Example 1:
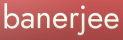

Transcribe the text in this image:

banerjee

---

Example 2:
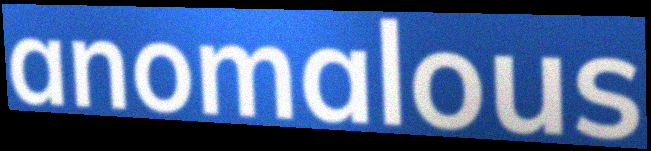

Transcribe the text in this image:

anomalous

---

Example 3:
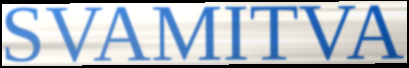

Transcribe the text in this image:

SVAMITVA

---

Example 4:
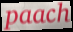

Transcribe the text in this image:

paach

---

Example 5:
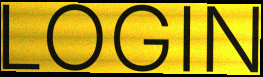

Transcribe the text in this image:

LOGIN